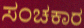
ಸಂಚಕಾರ